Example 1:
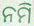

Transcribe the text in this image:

ନମି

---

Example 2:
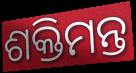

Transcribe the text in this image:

ଶକ୍ତିମନ୍ତ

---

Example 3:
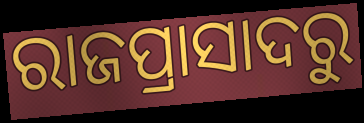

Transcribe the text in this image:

ରାଜପ୍ରାସାଦରୁ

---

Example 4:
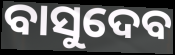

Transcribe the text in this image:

ବାସୁଦେବ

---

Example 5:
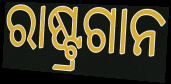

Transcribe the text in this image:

ରାଷ୍ଟ୍ରଗାନ